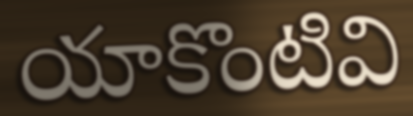
యాకొంటివి